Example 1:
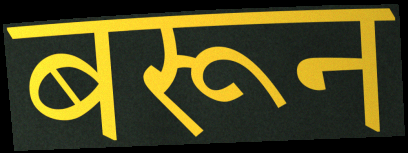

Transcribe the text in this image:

बरून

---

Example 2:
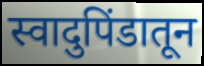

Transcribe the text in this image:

स्वादुपिंडातून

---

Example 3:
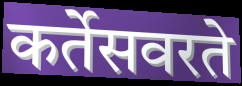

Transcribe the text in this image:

कर्तेसवरते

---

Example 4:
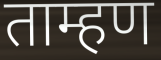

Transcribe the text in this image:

ताम्हण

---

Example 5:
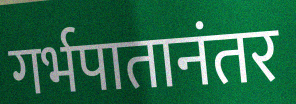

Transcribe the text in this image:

गर्भपातानंतर